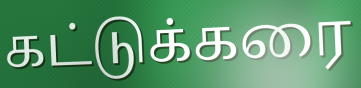
கட்டுக்கரை